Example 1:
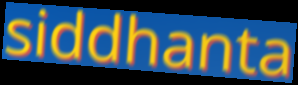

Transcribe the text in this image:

siddhanta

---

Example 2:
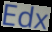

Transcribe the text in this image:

Edx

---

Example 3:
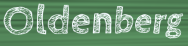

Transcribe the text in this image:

Oldenberg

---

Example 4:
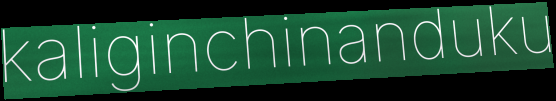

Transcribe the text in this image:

kaliginchinanduku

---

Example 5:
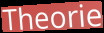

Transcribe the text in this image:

Theorie